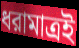
ধরামাত্রই